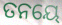
ତନୟେ